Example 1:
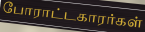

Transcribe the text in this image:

போராட்டகாரர்கள்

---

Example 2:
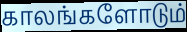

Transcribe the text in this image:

காலங்களோடும்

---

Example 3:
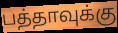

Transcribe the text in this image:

பத்தாவுக்கு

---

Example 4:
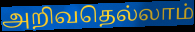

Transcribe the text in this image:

அறிவதெல்லாம்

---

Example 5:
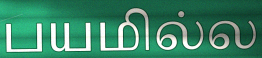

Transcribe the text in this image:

பயமில்ல